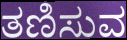
ತಣಿಸುವ